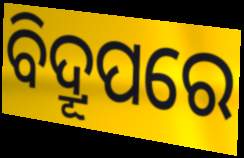
ବିଦ୍ରୂପରେ